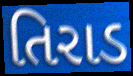
તિરાડ